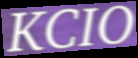
KCIO